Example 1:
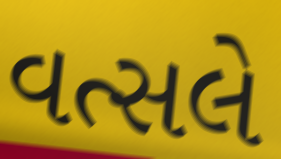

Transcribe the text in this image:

વત્સલે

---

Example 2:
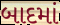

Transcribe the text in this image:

બાદમાં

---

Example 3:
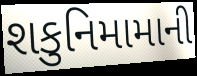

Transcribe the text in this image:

શકુનિમામાની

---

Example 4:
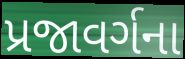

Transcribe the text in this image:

પ્રજાવર્ગના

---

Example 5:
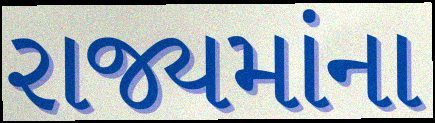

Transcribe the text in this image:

રાજ્યમાંના